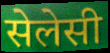
सेलेसी